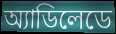
অ্যাডিলেডে